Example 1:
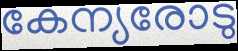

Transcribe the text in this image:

കേന്യരോടു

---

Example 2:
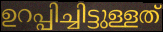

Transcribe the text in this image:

ഉറപ്പിച്ചിട്ടുള്ളത്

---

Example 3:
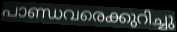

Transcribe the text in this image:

പാണ്ഡവരെക്കുറിച്ചു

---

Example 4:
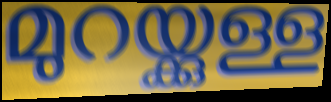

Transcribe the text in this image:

മുറയ്ക്കുള്ള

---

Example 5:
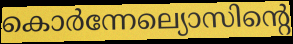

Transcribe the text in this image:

കൊർന്നേല്യൊസിന്റെ